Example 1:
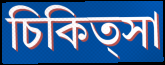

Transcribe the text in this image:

চিকিত্সা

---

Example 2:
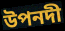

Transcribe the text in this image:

উপনদী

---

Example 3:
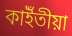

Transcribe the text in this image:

কাইঁতীয়া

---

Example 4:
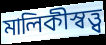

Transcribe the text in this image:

মালিকীস্বত্ত্ব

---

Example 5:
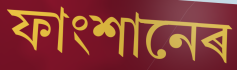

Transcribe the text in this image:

ফাংশানেৰ